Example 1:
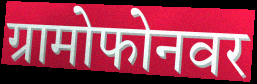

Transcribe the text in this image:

ग्रामोफोनवर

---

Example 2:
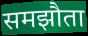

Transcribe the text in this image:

समझौता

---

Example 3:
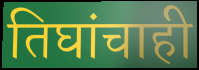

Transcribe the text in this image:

तिघांचाही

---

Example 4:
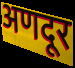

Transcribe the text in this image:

अणदूर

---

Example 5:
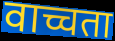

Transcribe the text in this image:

वाच्चता